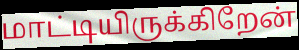
மாட்டியிருக்கிறேன்